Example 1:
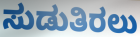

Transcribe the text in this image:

ಸುಡುತಿರಲು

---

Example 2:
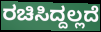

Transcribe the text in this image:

ರಚಿಸಿದ್ದಲ್ಲದೆ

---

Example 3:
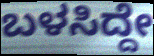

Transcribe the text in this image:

ಬಳಸಿದ್ದೇ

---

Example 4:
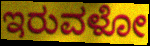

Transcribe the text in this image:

ಇರುವಳೋ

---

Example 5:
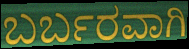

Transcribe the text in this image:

ಬರ್ಬರವಾಗಿ